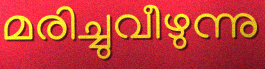
മരിച്ചുവീഴുന്നു